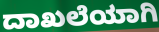
ದಾಖಲೆಯಾಗಿ